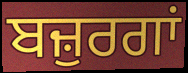
ਬਜ਼ੁਰਗਾਂ